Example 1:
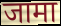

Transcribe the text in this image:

जामा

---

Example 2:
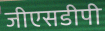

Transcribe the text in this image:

जीएसडीपी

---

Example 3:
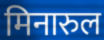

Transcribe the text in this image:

मिनारुल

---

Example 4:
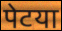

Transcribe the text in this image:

पेटया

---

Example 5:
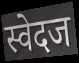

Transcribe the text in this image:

स्वेदज